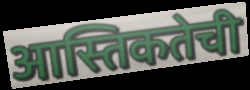
आस्तिकतेची